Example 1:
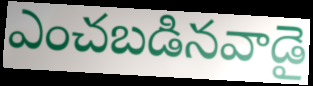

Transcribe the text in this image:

ఎంచబడినవాడై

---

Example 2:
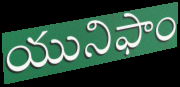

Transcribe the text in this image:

యునిఫాం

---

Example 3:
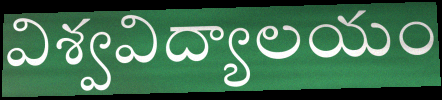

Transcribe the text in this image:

విశ్వవిద్యాలయం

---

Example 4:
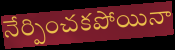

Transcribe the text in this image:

నేర్పించకపోయినా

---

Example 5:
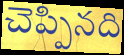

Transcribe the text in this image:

చెప్పినది